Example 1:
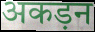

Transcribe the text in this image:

अकड़न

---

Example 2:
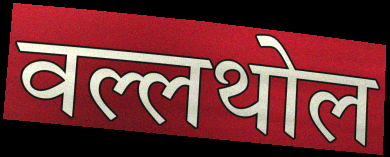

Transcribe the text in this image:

वल्लथोल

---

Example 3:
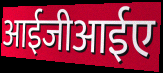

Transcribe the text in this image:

आईजीआईए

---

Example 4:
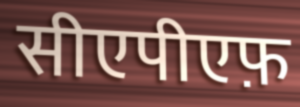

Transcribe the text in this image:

सीएपीएफ़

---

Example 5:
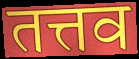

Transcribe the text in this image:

तत्तव